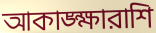
আকাঙ্ক্ষারাশি